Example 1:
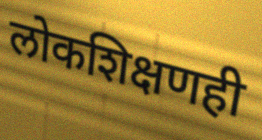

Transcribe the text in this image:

लोकशिक्षणही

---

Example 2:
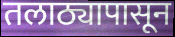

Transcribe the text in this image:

तलाठ्यापासून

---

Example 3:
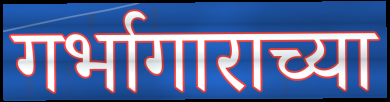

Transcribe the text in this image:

गर्भागाराच्या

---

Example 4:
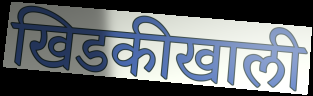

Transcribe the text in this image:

खिडकीखाली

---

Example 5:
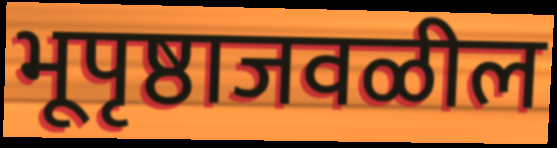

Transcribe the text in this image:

भूपृष्ठाजवळील